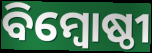
ବିମ୍ବୋଷ୍ଠୀ